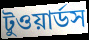
টুওয়ার্ডস